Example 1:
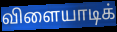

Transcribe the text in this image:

விளையாடிக்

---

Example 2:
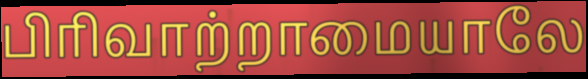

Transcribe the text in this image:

பிரிவாற்றாமையாலே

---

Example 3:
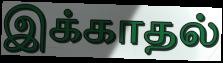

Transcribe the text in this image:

இக்காதல்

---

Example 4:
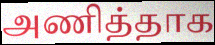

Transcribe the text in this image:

அணித்தாக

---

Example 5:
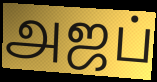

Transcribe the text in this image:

அஜப்